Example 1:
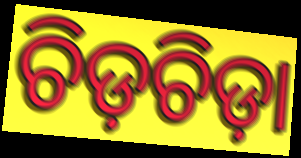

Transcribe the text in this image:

ଚିଡ଼ଚିଡ଼ା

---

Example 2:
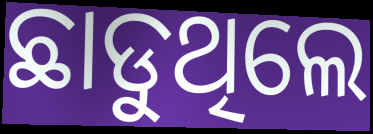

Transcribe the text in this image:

ଛାଡୁଥିଲେ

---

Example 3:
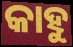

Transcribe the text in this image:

କାହୁ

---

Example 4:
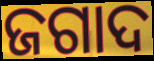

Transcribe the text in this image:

ଜଗାଦ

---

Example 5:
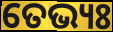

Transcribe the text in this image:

ତେଭ୍ୟଃ